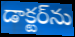
డాక్టర్‌ను